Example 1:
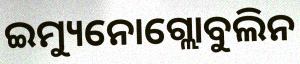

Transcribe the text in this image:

ଇମ୍ୟୁନୋଗ୍ଲୋବୁଲିନ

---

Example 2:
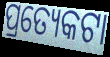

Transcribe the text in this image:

ପ୍ରତ୍ୟେକଟା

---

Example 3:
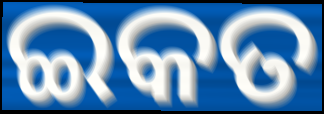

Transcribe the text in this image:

ଇକତ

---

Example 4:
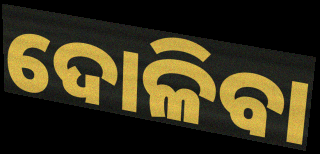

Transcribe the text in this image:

ଦୋଳିବା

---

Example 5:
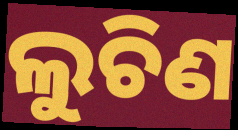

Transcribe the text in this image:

ଲୁଚିଣ